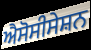
ਐਸੋਸੀਸੇਸ਼ਨ